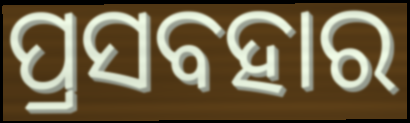
ପ୍ରସବହାର